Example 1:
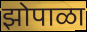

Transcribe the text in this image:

झोपाळा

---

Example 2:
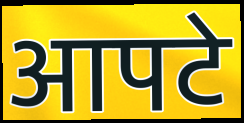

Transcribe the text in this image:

आपटे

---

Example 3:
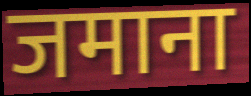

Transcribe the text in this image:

जमाना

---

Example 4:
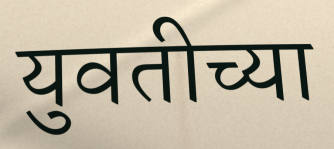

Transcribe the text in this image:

युवतीच्या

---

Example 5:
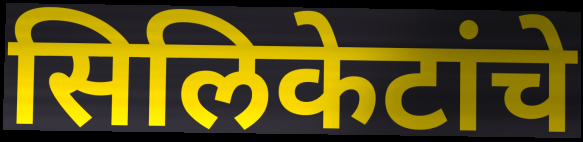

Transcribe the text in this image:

सिलिकेटांचे